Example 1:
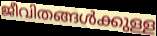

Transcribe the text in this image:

ജീവിതങ്ങൾക്കുള്ള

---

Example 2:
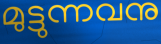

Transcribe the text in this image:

മുട്ടുന്നവനു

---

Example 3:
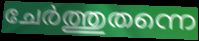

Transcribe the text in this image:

ചേർത്തുതന്നെ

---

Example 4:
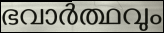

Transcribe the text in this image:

ഭവാർത്ഥവും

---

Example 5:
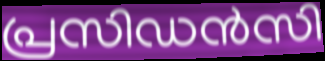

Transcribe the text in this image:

പ്രസിഡൻസി